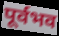
पूर्वभव